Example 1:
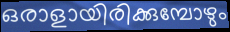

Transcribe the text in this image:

ഒരാളായിരിക്കുമ്പോഴും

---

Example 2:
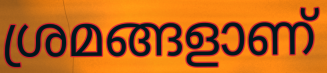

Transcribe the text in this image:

ശ്രമങ്ങളാണ്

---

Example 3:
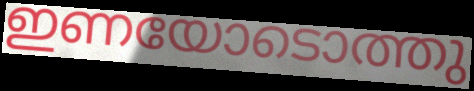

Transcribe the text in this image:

ഇണയോടൊത്തു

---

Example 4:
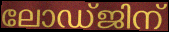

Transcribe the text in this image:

ലോഡ്ജിന്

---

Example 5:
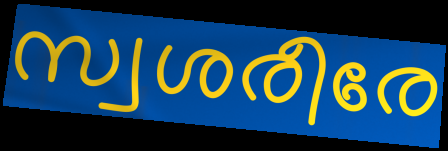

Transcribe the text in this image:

സ്വശരീരേ